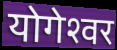
योगेश्वर